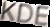
KDE